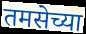
तमसेच्या